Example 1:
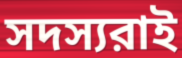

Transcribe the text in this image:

সদস্যরাই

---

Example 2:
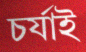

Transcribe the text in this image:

চর্যাই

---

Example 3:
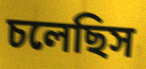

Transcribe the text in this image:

চলেছিস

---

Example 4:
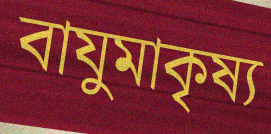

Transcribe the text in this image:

বাযুমাকৃষ্য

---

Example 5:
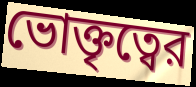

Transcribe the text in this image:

ভোক্তৃত্বের